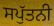
ਸਪੁੱਤਨੀ